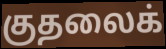
குதலைக்